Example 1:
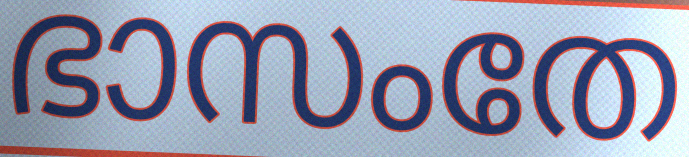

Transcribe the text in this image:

ഭാസംതേ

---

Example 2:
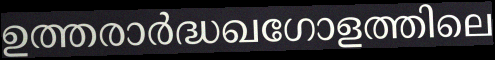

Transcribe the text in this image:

ഉത്തരാർദ്ധഖഗോളത്തിലെ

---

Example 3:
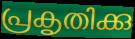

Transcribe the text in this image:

പ്രകൃതിക്കു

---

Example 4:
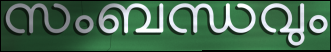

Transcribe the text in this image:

സംബന്ധവും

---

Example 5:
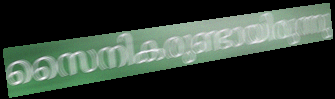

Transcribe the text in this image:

സൈനികരുണ്ടായിരുന്നു